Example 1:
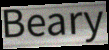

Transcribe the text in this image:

Beary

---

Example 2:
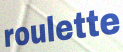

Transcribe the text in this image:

roulette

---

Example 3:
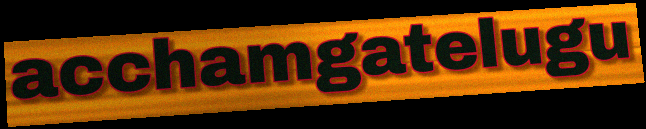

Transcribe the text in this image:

acchamgatelugu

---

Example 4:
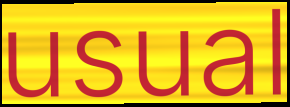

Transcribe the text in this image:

usual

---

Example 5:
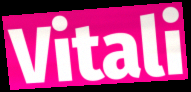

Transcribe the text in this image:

Vitali